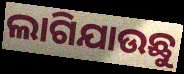
ଲାଗିଯାଉଛୁ